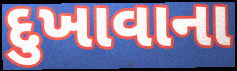
દુખાવાના